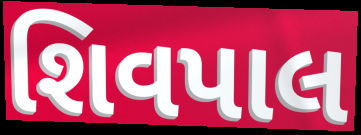
શિવપાલ